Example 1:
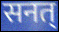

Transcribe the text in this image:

सनत्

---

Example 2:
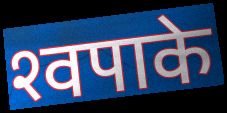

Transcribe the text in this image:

श्वपाके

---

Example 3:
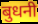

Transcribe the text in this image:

बुधनी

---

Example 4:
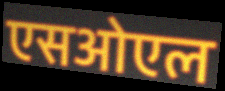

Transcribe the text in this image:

एसओएल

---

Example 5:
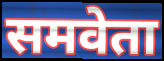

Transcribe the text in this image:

समवेता